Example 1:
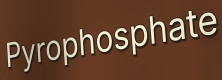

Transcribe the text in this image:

Pyrophosphate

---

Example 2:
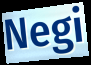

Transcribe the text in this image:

Negi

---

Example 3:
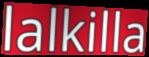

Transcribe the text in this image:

lalkilla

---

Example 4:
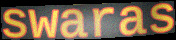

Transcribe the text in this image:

swaras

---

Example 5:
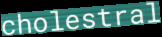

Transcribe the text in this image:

cholestral